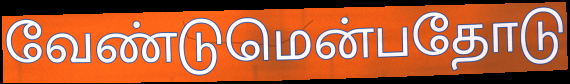
வேண்டுமென்பதோடு